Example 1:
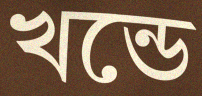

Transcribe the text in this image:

খন্ডে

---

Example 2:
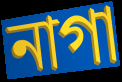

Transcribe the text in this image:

নাগা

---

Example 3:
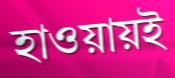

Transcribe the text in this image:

হাওয়ায়ই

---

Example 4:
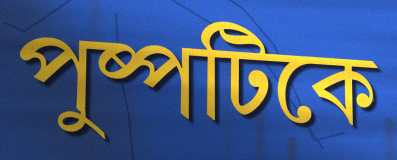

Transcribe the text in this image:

পুষ্পটিকে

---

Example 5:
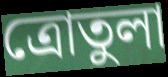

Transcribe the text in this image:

ত্রোতুলা